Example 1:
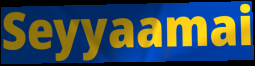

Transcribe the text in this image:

Seyyaamai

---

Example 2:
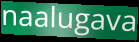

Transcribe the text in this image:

naalugava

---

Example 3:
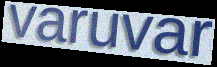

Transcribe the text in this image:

varuvar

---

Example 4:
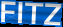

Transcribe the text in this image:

FITZ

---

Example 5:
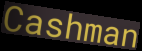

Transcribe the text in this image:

Cashman